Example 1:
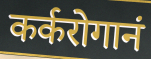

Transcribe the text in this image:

कर्करोगानं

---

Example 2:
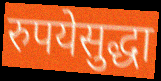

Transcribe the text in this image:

रुपयेसुद्धा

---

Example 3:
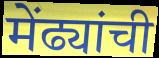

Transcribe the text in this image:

मेंढ्यांची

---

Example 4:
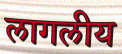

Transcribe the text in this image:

लागलीय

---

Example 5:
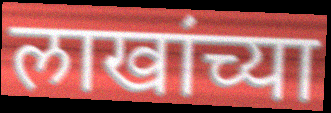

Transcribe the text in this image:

लाखांच्या